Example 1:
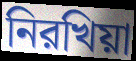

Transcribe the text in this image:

নিরখিয়া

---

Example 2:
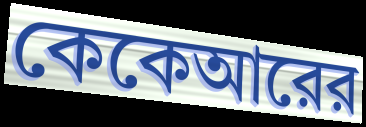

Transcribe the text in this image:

কেকেআরের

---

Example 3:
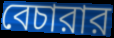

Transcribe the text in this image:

বেচারার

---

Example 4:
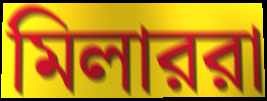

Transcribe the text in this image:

মিলাররা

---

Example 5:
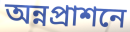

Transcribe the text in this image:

অন্নপ্রাশনে